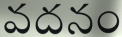
వదనం